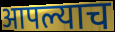
आपल्याच